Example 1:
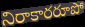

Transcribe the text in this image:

నిరాకారరూపో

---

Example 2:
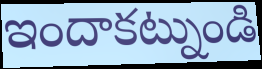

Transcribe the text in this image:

ఇందాకట్నుండి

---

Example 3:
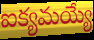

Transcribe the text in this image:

ఐక్యమయ్యే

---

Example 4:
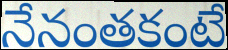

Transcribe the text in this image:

నేనంతకంటే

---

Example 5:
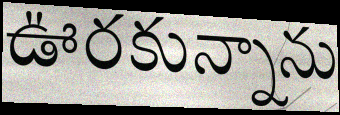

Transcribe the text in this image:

ఊరకున్నాను